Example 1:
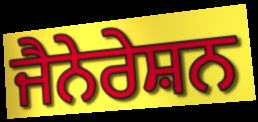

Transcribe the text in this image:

ਜੈਨੇਰੇਸ਼ਨ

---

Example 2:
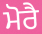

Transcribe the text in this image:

ਮੋਰੈ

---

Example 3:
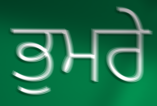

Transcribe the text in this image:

ਭੁਮਰੇ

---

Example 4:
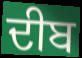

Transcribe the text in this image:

ਦੀਬ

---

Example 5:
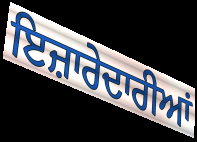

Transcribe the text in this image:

ਇਜ਼ਾਰੇਦਾਰੀਆਂ